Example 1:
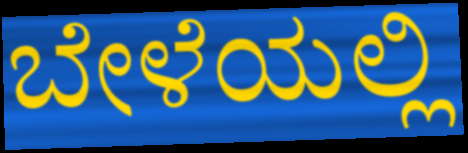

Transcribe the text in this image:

ಬೇಳೆಯಲ್ಲಿ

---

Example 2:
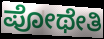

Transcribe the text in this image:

ಪೋಥೇತಿ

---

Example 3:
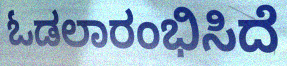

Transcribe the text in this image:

ಓಡಲಾರಂಭಿಸಿದೆ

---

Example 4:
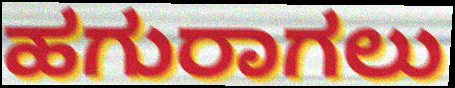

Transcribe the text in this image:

ಹಗುರಾಗಲು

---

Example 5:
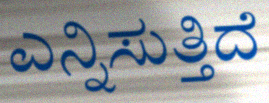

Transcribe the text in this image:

ಎನ್ನಿಸುತ್ತಿದೆ